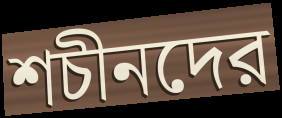
শচীনদের